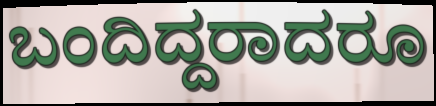
ಬಂದಿದ್ದರಾದರೂ